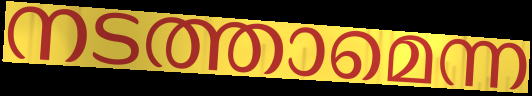
നടത്താമെന്ന